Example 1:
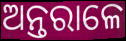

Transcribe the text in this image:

ଅନ୍ତରାଳେ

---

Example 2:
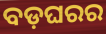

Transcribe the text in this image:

ବଡ଼ଘରର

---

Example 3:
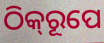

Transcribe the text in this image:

ଠିକ୍‍ରୂପେ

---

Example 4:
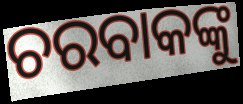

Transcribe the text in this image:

ଚରବାକଙ୍କୁ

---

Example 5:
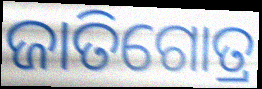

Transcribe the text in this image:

ଜାତିଗୋତ୍ର